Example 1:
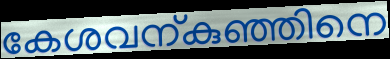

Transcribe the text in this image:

കേശവന്കുഞ്ഞിനെ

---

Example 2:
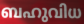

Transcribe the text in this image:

ബഹുവിധ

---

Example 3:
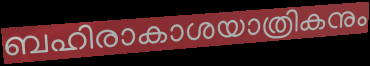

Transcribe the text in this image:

ബഹിരാകാശയാത്രികനും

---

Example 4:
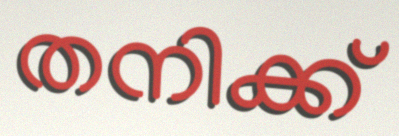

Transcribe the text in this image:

തനിക്ക്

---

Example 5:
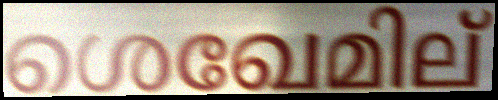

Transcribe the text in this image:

ശെഖേമില്